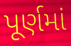
પૂર્ણમાં